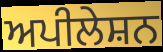
ਅਪੀਲੇਸ਼ਨ